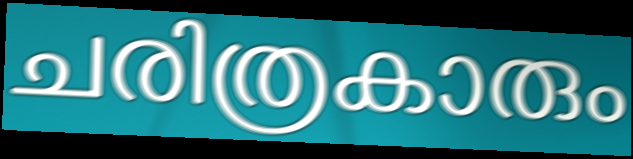
ചരിത്രകാരും